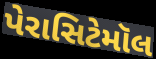
પેરાસિટેમૉલ